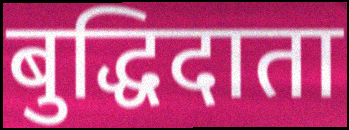
बुद्धिदाता